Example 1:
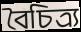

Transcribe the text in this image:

বৈচিত্র্য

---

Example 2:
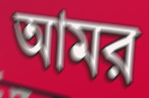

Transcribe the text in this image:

আমর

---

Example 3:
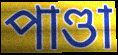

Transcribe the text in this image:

পাণ্ডা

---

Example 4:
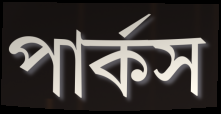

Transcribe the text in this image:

পার্কস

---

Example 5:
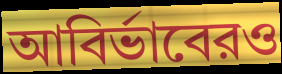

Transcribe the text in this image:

আবির্ভাবেরও